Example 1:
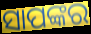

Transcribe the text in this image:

ସାପଙ୍କର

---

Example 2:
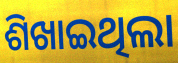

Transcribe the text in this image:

ଶିଖାଇଥିଲା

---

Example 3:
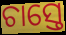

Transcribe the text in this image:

ଚାସ୍ତେ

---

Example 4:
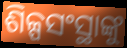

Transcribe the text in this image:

ଶିଳ୍ପସଂସ୍ଥାଙ୍କୁ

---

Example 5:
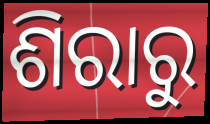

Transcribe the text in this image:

ଶିରାରୁ